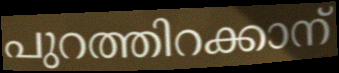
പുറത്തിറക്കാന്